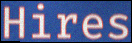
Hires